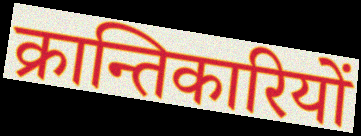
क्रान्तिकारियों